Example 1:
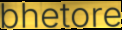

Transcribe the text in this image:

bhetore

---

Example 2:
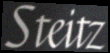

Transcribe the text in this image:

Steitz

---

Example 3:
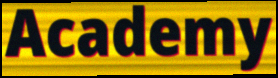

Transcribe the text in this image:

Academy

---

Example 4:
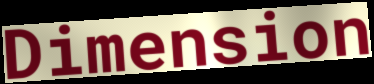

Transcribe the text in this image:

Dimension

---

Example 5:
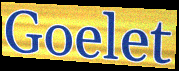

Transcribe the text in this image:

Goelet